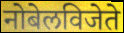
नोबेलविजेते